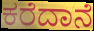
ಕರೆದಾನೆ